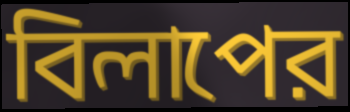
বিলাপের